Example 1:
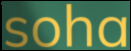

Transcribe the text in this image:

soha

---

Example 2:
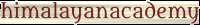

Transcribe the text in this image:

himalayanacademy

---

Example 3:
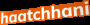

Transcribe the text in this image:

haatchhani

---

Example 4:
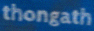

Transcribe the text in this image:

thongath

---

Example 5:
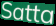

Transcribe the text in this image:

Satta